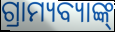
ଗ୍ରାମ୍ୟବ୍ୟାଙ୍କ୍